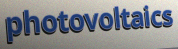
photovoltaics